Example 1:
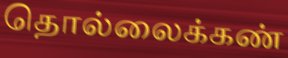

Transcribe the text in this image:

தொல்லைக்கண்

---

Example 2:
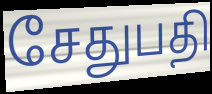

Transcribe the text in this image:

சேதுபதி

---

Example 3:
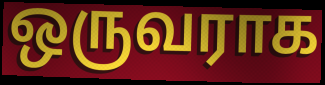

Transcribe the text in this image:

ஒருவராக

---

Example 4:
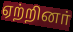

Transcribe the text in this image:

ஏற்றினர்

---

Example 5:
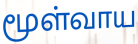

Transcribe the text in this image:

மூள்வாய